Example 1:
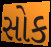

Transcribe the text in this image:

સોક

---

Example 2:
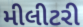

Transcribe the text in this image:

મીલીટરી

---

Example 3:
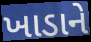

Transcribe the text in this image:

ખાડાને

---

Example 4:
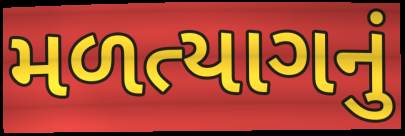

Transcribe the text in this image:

મળત્યાગનું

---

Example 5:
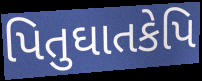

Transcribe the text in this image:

પિતુઘાતકેપિ